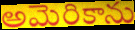
అమెరికాను